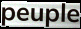
peuple